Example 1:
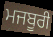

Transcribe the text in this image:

ਮਜਬੂਰੀ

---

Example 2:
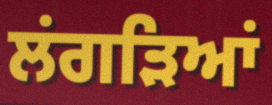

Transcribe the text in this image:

ਲਂਗੜਿਆਂ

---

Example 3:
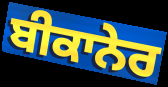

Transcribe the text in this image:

ਬੀਕਾਨੇਰ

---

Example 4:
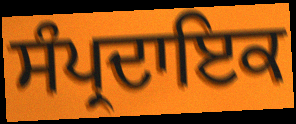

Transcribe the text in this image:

ਸੰਪ੍ਰਦਾਇਕ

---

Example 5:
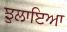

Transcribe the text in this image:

ਝੁਲਾਇਆ